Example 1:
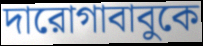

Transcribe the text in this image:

দারোগাবাবুকে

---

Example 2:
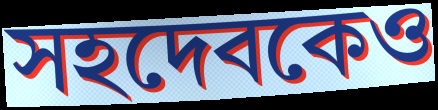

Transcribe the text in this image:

সহদেবকেও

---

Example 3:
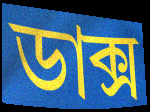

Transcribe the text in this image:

ডাক্স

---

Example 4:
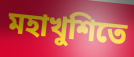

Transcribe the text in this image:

মহাখুশিতে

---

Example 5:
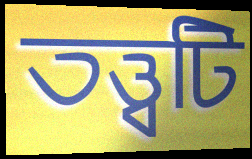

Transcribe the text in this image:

তত্ত্বটি